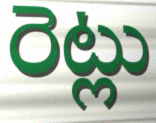
రెట్లు